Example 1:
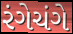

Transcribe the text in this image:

રંગેચંગે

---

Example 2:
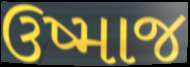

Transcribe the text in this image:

ઉષ્માજ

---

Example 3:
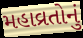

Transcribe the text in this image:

મહાવ્રતોનું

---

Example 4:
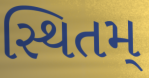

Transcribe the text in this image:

સ્થિતમ્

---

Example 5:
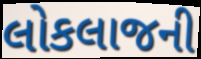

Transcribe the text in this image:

લોકલાજની